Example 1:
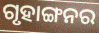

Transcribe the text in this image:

ଗୃହାଙ୍ଗନର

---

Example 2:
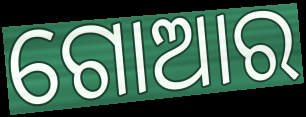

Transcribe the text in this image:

ଗୋଆର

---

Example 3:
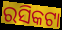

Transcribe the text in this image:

ରସିକଟା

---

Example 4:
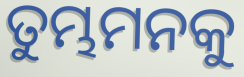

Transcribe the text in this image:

ତୁମ୍ଭମନକୁ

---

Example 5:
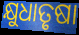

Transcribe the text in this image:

କ୍ଷୁଧାତୃଷା